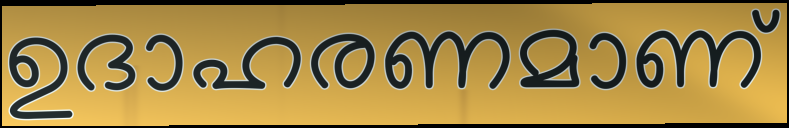
ഉദാഹരണമാണ്